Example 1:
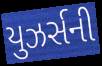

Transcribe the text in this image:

યુઝર્સની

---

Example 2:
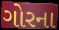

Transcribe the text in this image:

ગોરના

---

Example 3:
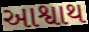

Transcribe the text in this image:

આશ્વાથ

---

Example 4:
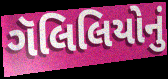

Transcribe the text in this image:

ગૅલિલિયોનું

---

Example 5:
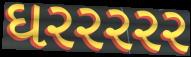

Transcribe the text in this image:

ઘરરરરર